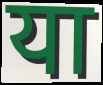
या